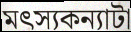
মৎস্যকন্যাটা